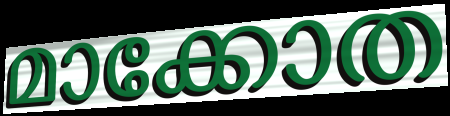
മാക്കോത